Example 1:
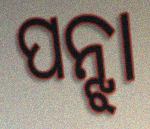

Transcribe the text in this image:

ପନ୍ଝା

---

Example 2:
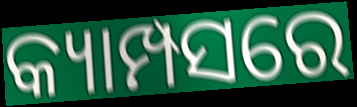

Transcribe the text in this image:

କ୍ୟାମ୍ପସରେ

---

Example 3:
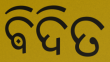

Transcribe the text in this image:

ଵିଦିତ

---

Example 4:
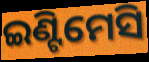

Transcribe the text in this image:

ଇଣ୍ଟିମେସି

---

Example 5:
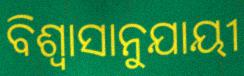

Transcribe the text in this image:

ବିଶ୍ୱାସାନୁଯାୟୀ